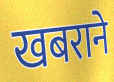
खबराने